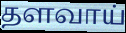
தளவாய்